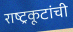
राष्ट्रकूटांची